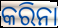
କରିନା